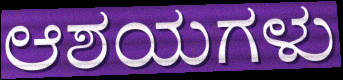
ಆಶಯಗಳು